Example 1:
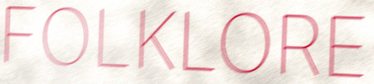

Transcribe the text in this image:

FOLKLORE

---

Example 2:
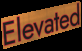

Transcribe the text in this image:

Elevated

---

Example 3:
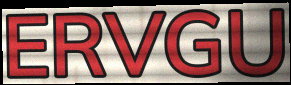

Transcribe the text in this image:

ERVGU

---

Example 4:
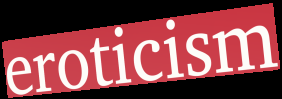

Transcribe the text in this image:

eroticism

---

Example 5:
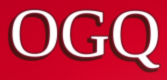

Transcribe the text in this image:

OGQ